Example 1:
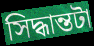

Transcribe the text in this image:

সিদ্ধান্তটা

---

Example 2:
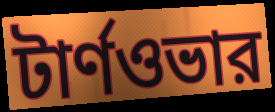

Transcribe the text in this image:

টার্ণওভার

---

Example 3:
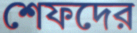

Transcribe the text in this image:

শেফদের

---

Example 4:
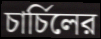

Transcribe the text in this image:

চার্চিলের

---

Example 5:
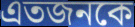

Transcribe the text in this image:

এতজনকে